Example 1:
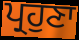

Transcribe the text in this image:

ਪ੍ਰਹੁਣਾ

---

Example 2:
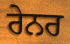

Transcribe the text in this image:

ਰੇਨਰ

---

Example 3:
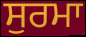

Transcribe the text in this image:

ਸੁਰਮਾ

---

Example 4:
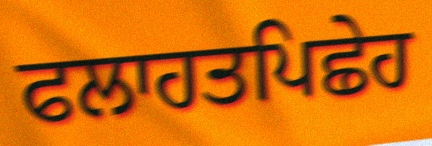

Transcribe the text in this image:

ਫਲਾਹਤਪਿਛੇਹ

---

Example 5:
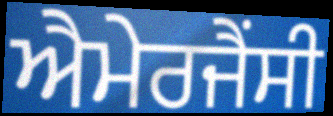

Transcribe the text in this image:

ਐਮੇਰਜੈਂਸੀ